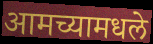
आमच्यामधले